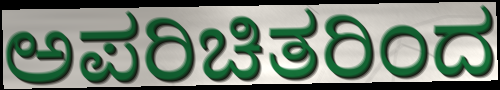
ಅಪರಿಚಿತರಿಂದ